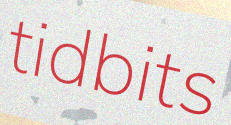
tidbits